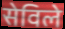
सेविले